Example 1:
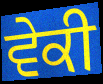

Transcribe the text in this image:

ਵੇਕੀ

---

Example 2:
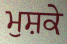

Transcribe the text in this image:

ਮੁਸ਼ਕੇ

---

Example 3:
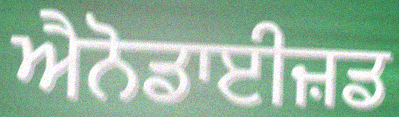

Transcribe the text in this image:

ਐਨੋਡਾਈਜ਼ਡ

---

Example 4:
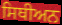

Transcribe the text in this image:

ਸਿਥੀਅਨ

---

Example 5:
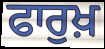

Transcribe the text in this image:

ਫਾਰੁਖ਼